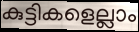
കുട്ടികളെല്ലാം